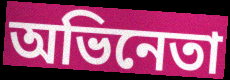
অভিনেতা